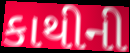
કાથીની